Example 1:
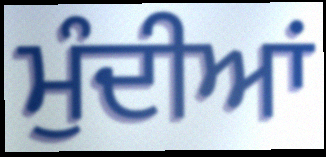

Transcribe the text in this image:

ਮੁੰਦੀਆਂ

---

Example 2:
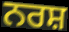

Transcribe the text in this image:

ਨਰਸ਼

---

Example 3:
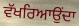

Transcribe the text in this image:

ਵੱਖਰਿਆਉਂਦਾ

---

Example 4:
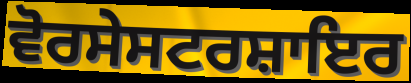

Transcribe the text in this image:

ਵੋਰਸੇਸਟਰਸ਼ਾਇਰ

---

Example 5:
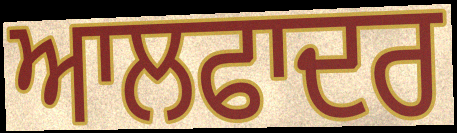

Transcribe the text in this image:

ਆਲਫਾਦਰ